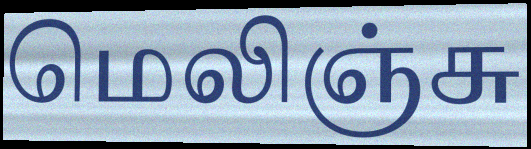
மெலிஞ்சு